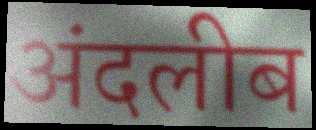
अंदलीब